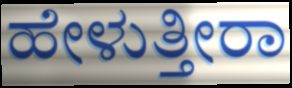
ಹೇಳುತ್ತೀರಾ